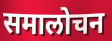
समालोचन